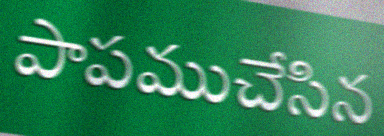
పాపముచేసిన